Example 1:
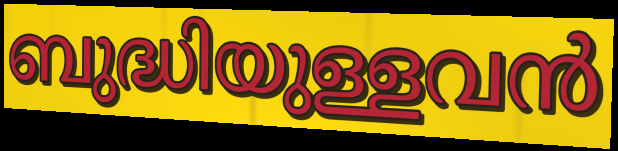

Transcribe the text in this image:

ബുദ്ധിയുള്ളവൻ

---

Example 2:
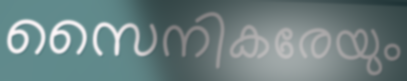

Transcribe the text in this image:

സൈനികരേയും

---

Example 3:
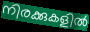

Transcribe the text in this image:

നിരക്കുകളിൽ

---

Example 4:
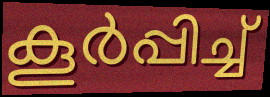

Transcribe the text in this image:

കൂർപ്പിച്ച്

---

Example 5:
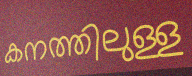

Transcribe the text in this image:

കനത്തിലുള്ള